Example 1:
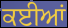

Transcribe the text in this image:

ਕਈਆਂ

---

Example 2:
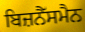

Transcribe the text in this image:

ਬਿਜ਼ਨੈੱਸਮੈਨ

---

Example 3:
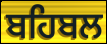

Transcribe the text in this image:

ਬਹਿਬਲ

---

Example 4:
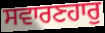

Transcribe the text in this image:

ਸਵਾਰਣਹਾਰੁ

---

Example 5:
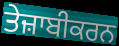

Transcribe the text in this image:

ਤੇਜ਼ਾਬੀਕਰਨ